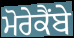
ਮੋਰੇਕੈਂਬੇ